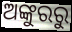
ଅଙ୍କୁରରୁ